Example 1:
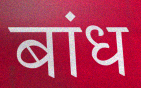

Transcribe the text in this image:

बांध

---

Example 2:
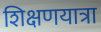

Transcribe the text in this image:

शिक्षणयात्रा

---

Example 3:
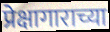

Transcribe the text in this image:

प्रेक्षागाराच्या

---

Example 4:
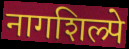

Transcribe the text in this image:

नागशिल्पे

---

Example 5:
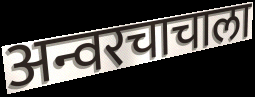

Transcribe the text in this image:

अन्वरचाचाला